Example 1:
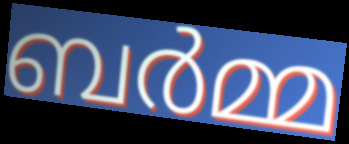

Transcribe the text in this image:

ബർമ്മ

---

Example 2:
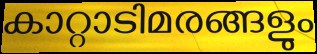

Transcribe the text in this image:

കാറ്റാടിമരങ്ങളും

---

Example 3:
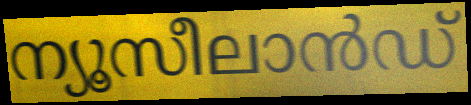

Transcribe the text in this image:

ന്യൂസീലാൻഡ്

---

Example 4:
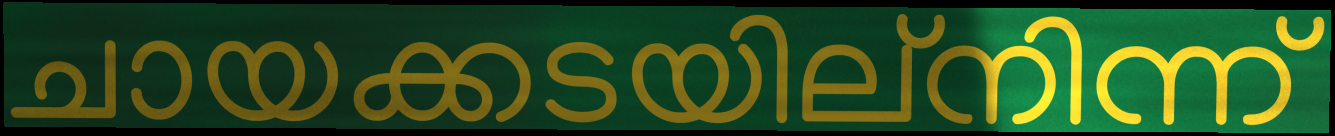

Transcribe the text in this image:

ചായക്കടയില്നിന്ന്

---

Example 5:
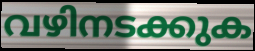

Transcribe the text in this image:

വഴിനടക്കുക